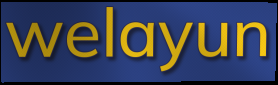
welayun